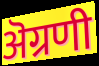
ऄग्रणी